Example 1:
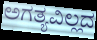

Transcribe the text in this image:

ಅಗತ್ಯವಿಲ್ಲದ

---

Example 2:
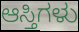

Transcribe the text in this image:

ಆಸ್ತಿಗಳು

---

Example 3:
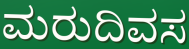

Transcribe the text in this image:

ಮರುದಿವಸ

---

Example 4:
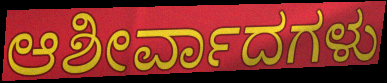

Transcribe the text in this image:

ಆಶೀರ್ವಾದಗಳು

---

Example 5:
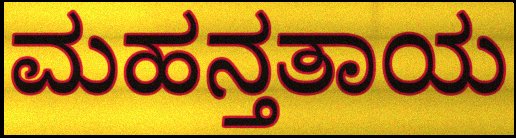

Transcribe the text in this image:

ಮಹನ್ತತಾಯ